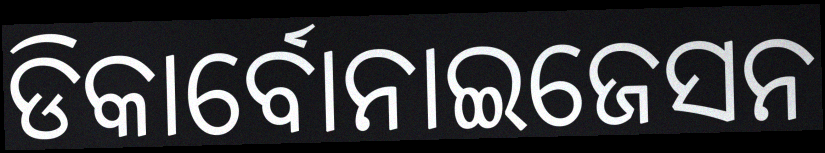
ଡିକାର୍ବୋନାଇଜେସନ